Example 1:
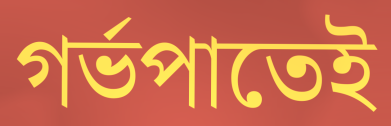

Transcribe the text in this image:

গৰ্ভপাতেই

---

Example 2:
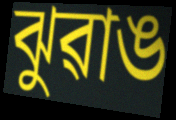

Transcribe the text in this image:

ঝুৱাঙ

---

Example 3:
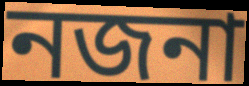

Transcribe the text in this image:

নজনা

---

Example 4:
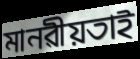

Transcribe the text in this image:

মানৱীয়তাই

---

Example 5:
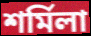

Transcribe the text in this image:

শৰ্মিলা